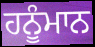
ਹਨੂੰਮਾਨ